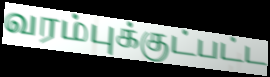
வரம்புக்குட்பட்ட